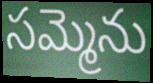
సమ్మెను